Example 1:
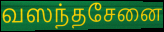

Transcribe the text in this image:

வஸந்தசேனை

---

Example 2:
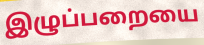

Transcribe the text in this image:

இழுப்பறையை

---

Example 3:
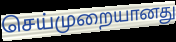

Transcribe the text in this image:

செய்முறையானது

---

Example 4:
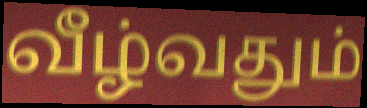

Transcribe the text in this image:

வீழ்வதும்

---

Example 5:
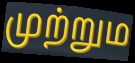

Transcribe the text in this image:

முற்றும